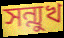
সন্মুখ